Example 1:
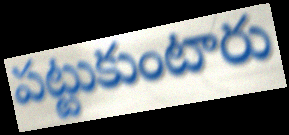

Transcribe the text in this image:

పట్టుకుంటారు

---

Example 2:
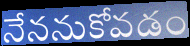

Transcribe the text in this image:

నేననుకోవడం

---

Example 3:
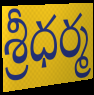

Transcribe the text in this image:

శ్రీధర్మ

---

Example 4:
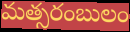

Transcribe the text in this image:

మత్సరంబులం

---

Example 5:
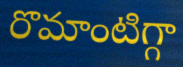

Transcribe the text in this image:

రొమాంటిగ్గా